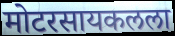
मोटरसायकलला